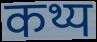
कथ्य